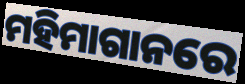
ମହିମାଗାନରେ